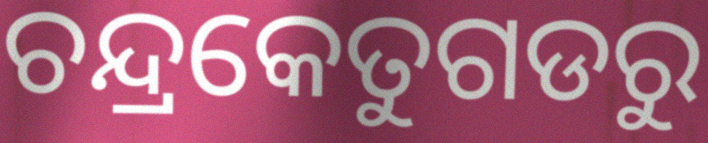
ଚନ୍ଦ୍ରକେତୁଗଡରୁ